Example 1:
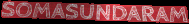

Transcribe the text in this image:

SOMASUNDARAM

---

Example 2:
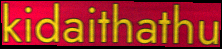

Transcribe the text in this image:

kidaithathu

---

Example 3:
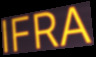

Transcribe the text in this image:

IFRA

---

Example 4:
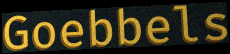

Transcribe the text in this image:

Goebbels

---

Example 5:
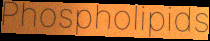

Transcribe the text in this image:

Phospholipids